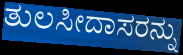
ತುಲಸೀದಾಸರನ್ನು